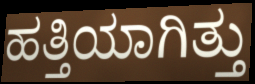
ಹತ್ತಿಯಾಗಿತ್ತು